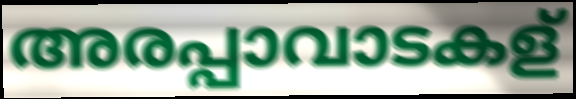
അരപ്പാവാടകള്